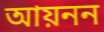
আয়নন